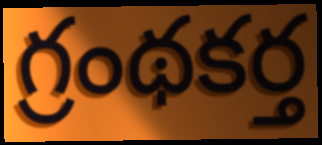
గ్రంథకర్త